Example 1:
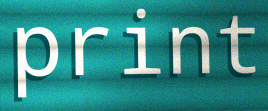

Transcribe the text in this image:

print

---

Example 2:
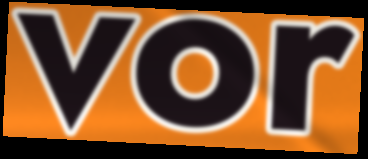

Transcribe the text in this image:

vor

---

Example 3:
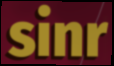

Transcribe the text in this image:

sinr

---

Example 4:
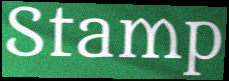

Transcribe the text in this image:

Stamp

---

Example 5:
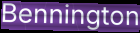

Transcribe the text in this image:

Bennington